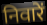
निवारें